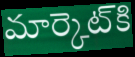
మార్కెట్‌కి